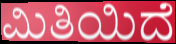
ಮಿತಿಯಿದೆ